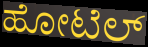
ಹೋಟೆಲ್